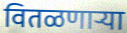
वितळणाऱ्या